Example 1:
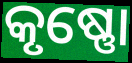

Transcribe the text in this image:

କୃଷ୍ଣୋ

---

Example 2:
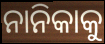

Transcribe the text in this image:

ନାନିକାକୁ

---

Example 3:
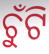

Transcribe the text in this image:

ଚୁଁଟି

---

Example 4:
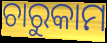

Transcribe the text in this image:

ଚାରୁକାମ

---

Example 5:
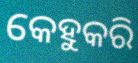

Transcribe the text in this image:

କେହୁକରି